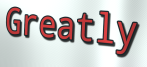
Greatly